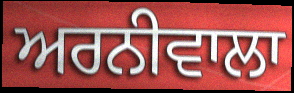
ਅਰਨੀਵਾਲਾ